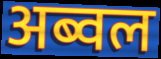
अब्वल